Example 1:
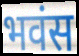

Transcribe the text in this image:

भवंस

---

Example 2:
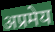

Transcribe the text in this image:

अप्रमेय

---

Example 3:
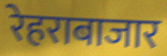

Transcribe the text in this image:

रेहराबाजार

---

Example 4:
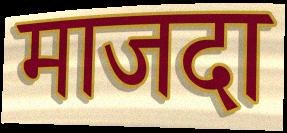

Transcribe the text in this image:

माजदा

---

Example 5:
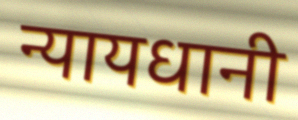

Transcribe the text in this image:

न्यायधानी